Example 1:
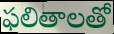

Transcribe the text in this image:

ఫలితాలతో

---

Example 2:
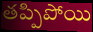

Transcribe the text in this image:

తప్పిపోయి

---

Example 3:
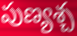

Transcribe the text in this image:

పుణ్యశ్చ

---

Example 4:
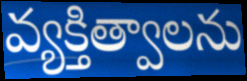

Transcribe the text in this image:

వ్యక్తిత్వాలను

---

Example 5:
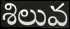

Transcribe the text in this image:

శిలువ